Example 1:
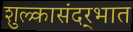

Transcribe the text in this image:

शुल्कासंदर्भात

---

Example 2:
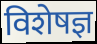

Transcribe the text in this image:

विशेषज्ञ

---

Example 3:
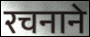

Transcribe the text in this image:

रचनाने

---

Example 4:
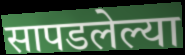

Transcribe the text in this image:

सापडलेल्‍या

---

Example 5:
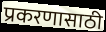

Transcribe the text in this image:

प्रकरणासाठी